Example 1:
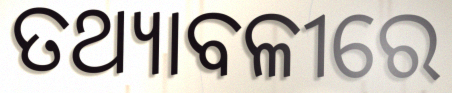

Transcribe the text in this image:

ତଥ୍ୟାବଳୀରେ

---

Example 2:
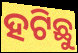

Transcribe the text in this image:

ହଟିଛୁ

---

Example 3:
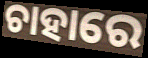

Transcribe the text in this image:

ଚାହାରେ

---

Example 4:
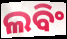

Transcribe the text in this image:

ଲବିଂ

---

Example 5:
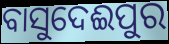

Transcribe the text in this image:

ବାସୁଦେଈପୁର